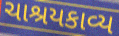
ચાશ્રયકાવ્ય